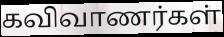
கவிவாணர்கள்